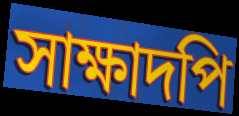
সাক্ষাদপি